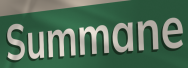
Summane